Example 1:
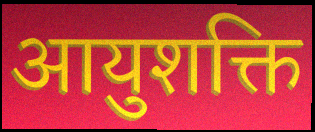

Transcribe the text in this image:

आयुशक्ति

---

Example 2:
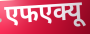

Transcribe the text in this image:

एफएक्यू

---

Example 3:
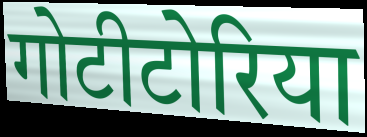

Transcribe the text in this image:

गोटीटोरिया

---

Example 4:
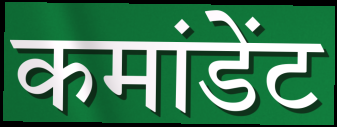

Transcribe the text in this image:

कमांडेंट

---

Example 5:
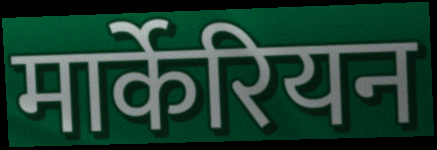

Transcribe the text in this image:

मार्केरियन